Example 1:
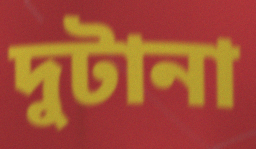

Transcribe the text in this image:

দুটানা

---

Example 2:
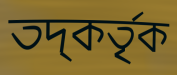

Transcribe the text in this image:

তদ্‌কর্তৃক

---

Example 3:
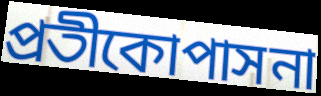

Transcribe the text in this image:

প্রতীকোপাসনা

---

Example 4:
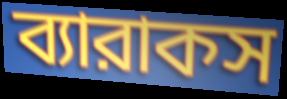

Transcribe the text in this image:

ব্যারাকস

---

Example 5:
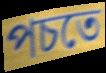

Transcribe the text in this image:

পচতে